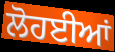
ਲੋਹਈਆਂ